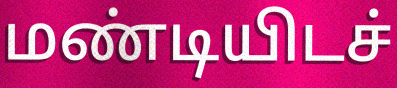
மண்டியிடச்